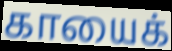
காயைக்